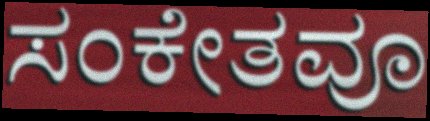
ಸಂಕೇತವೂ